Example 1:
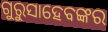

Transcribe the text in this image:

ଗୁରୁସାହେବଙ୍କର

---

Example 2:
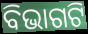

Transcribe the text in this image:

ବିଭାଗଟି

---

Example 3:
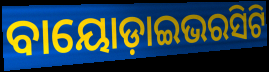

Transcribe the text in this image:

ବାୟୋଡ଼ାଇଭରସିଟି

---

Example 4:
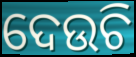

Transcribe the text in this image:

ଦେଉଚି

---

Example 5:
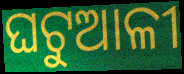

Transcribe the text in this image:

ଘଟୁଆଳୀ